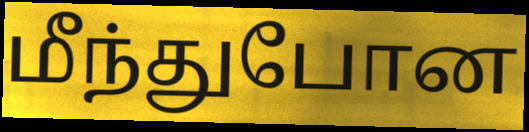
மீந்துபோன